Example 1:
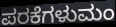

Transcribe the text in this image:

ಪರಕೆಗಳುಮಂ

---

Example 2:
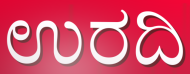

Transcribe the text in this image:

ಉರದಿ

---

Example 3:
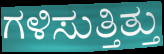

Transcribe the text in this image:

ಗಳಿಸುತ್ತಿತ್ತು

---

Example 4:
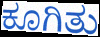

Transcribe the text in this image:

ಕೂಗಿತು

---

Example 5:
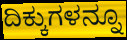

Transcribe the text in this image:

ದಿಕ್ಕುಗಳನ್ನೂ